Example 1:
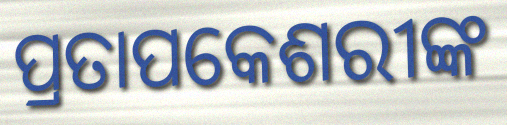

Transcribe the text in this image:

ପ୍ରତାପକେଶରୀଙ୍କ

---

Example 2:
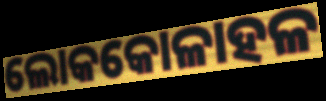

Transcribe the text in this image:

ଲୋକକୋଳାହଳ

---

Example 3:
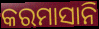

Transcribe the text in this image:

କରମାସାନି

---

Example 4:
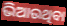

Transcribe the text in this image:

ଭିଆଉଥିବା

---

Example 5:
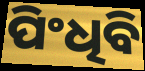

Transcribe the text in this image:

ପିଂଧିବି